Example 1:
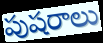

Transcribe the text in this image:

పుషరాలు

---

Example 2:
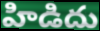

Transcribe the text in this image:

హిడిదు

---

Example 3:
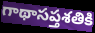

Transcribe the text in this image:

గాథాసప్తశతికి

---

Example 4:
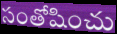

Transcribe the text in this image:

సంతోషించు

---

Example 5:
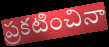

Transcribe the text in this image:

ప్రకటించినా